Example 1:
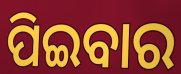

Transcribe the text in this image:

ପିଇବାର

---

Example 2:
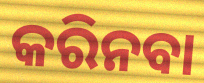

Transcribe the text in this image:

କରିନବା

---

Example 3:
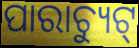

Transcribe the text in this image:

ପାରାଚ୍ୟୁଟ୍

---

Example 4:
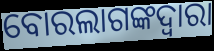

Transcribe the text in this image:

ବୋରଲାଗଙ୍କଦ୍ୱାରା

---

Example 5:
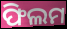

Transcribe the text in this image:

ଫିଲମ